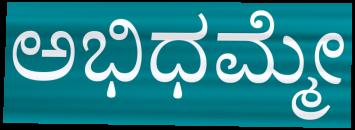
ಅಭಿಧಮ್ಮೇ